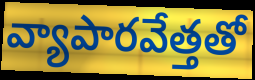
వ్యాపారవేత్తతో